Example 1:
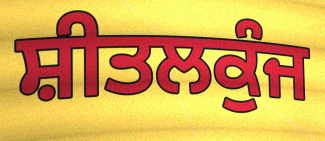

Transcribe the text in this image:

ਸ਼ੀਤਲਕੁੰਜ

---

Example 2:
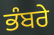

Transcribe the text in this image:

ਭੰਬਰੇ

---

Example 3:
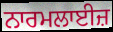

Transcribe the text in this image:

ਨਾਰਮਲਾਈਜ਼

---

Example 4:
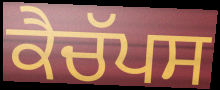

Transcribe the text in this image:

ਕੈਚੱਪਸ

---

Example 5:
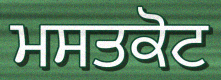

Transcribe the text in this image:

ਮਸਤਕੋਟ